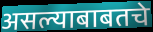
असल्याबाबतचे